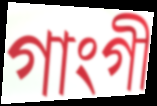
গাংগী